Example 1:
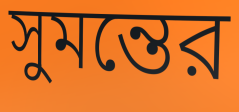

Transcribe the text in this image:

সুমন্তের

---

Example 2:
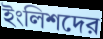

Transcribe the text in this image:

ইংলিশদের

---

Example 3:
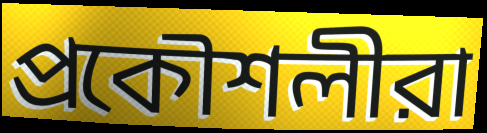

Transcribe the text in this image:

প্রকৌশলীরা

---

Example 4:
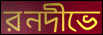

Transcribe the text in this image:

রনদীভে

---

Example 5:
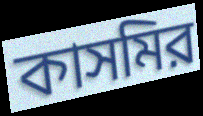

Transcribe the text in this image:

কাসমির